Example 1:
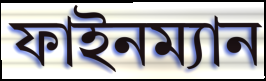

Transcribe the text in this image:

ফাইনম্যান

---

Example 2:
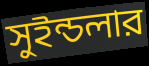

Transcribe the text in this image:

সুইন্ডলার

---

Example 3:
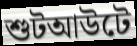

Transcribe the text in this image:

শুটআউটে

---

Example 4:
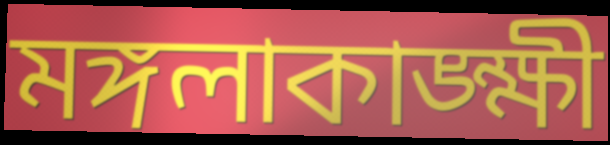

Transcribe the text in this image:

মঙ্গলাকাঙ্ক্ষী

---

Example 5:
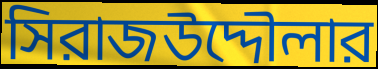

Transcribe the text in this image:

সিরাজউদ্দৌলার